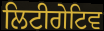
ਲਿਟੀਗੇਟਿਵ